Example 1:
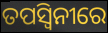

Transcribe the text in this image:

ତପସ୍ଵିନୀରେ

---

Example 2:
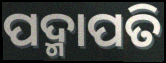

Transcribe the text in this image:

ପଦ୍ମାପତି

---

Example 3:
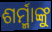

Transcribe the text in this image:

ଶର୍ମ୍ମାଙ୍କୁ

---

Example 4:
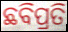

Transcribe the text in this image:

ଛବିପ୍ରତି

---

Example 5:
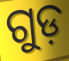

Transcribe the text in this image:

ଗୁଡ଼